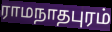
ராமநாதபுரம்